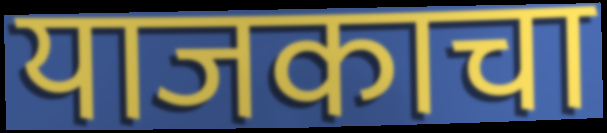
याजकाचा